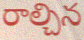
రాల్చిన